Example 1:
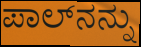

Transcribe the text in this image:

ಪಾಲ್‍ನನ್ನು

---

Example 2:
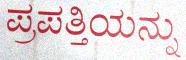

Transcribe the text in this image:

ಪ್ರಪತ್ತಿಯನ್ನು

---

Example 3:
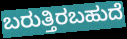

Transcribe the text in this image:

ಬರುತ್ತಿರಬಹುದೆ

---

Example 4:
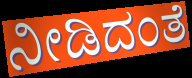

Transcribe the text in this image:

ನೀಡಿದಂತೆ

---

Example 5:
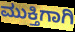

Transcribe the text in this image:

ಮುಕ್ತಿಗಾಗಿ